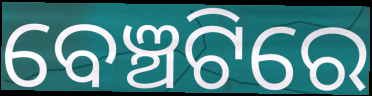
ବେଞ୍ଚଟିରେ